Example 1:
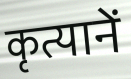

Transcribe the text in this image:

कृत्यानें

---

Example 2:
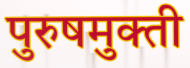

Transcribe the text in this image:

पुरुषमुक्ती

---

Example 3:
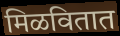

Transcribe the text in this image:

मिळवितात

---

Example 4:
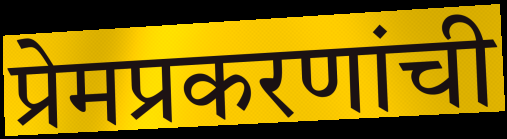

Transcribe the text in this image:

प्रेमप्रकरणांची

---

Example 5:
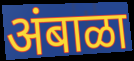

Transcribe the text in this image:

अंबाळा